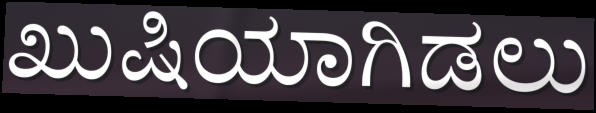
ಖುಷಿಯಾಗಿಡಲು